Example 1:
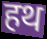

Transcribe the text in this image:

हथ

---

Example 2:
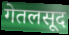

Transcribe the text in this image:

गेतलसूद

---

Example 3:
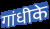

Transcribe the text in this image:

गांधीके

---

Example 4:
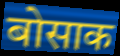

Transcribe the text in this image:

बोसाक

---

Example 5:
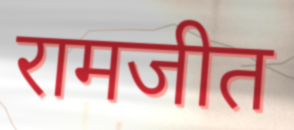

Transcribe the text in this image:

रामजीत